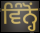
ਵਿੰਨ੍ਹੋਂ